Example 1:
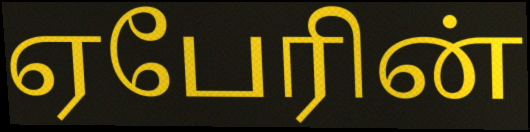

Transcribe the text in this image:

ஏபேரின்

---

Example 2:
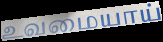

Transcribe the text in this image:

உவமையாய்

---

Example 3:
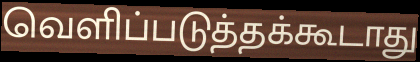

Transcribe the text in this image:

வெளிப்படுத்தக்கூடாது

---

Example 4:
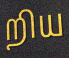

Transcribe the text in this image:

றிய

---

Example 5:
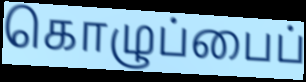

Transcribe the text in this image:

கொழுப்பைப்